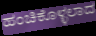
ಹಂಚಿಕೊಳ್ಳಲಾದ